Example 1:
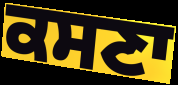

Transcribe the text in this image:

ਕਸਣਾ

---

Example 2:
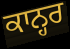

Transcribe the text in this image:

ਕਾਨ੍ਹਰ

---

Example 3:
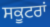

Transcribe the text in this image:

ਸਕੂਟਰਾਂ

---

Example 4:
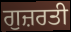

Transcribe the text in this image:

ਗੁਜ਼ਰਤੀ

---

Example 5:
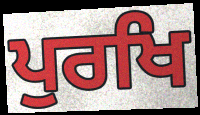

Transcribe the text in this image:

ਪੁਰਖਿ